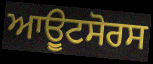
ਆਉੂਟਸੋਰਸ